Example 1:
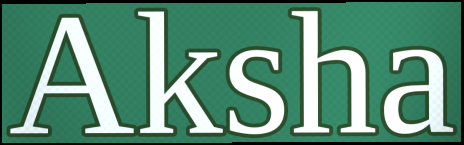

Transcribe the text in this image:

Aksha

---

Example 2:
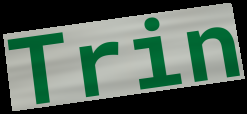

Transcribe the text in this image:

Trin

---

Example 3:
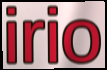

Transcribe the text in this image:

irio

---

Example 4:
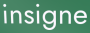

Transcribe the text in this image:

insigne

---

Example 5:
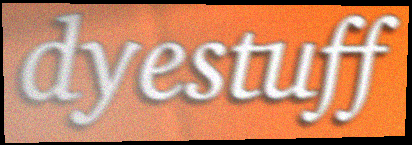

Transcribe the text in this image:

dyestuff